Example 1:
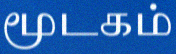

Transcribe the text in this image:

மூடகம்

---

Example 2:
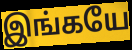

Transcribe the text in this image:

இங்கயே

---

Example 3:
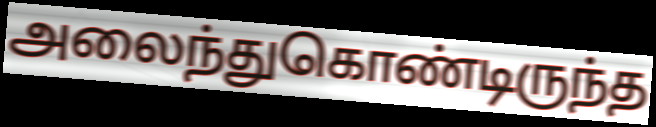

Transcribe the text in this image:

அலைந்துகொண்டிருந்த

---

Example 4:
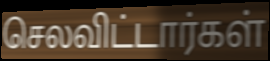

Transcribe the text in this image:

செலவிட்டார்கள்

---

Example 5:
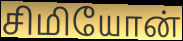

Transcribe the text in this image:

சிமியோன்